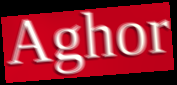
Aghor